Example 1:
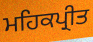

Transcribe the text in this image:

ਮਹਿਕਪ੍ਰੀਤ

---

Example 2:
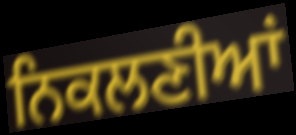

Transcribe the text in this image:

ਨਿਕਲਣੀਆਂ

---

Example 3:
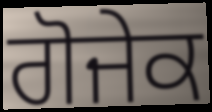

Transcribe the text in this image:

ਗੋਜੇਕ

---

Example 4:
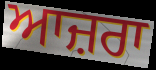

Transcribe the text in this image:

ਆਜ਼ਰਾ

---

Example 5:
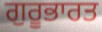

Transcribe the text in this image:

ਗੁਰੂਭਾਰਤ